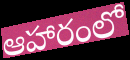
ఆహారంలో